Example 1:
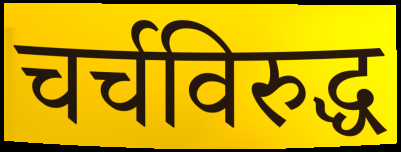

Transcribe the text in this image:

चर्चविरुद्ध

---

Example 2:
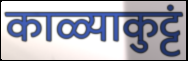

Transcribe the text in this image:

काळ्याकुट्टं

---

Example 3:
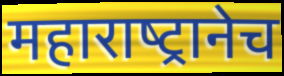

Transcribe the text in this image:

महाराष्ट्रानेच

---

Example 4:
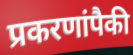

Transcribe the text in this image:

प्रकरणांपैकी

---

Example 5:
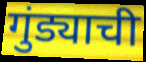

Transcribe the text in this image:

गुंड्याची